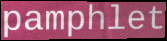
pamphlet